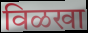
विळखा